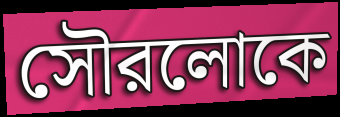
সৌরলোকে